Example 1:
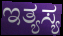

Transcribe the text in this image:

ಇತ್ಯಸ್ಯ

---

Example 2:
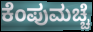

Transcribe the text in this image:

ಕೆಂಪುಮಚ್ಚೆ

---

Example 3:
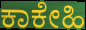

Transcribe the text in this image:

ಕಾಕೇಹಿ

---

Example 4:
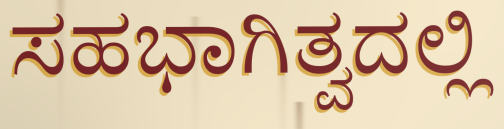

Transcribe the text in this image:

ಸಹಭಾಗಿತ್ವದಲ್ಲಿ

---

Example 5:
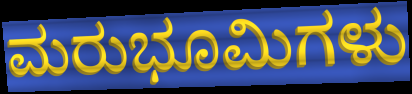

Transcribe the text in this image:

ಮರುಭೂಮಿಗಳು